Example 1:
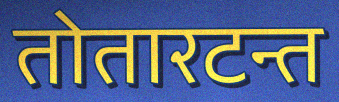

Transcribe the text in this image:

तोतारटन्त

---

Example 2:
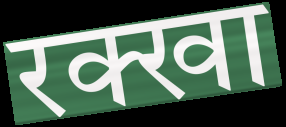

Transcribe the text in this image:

रक्‍खा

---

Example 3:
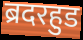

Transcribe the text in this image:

ब्रदरहुड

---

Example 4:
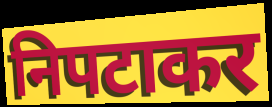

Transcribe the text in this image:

निपटाकर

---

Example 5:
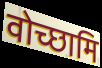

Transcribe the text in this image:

वोच्छामि